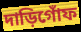
দাড়িগোঁফ